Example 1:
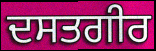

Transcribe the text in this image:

ਦਸਤਗੀਰ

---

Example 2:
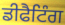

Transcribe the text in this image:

ਡੀਫੈਟਿੰਗ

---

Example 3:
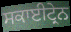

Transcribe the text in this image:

ਸਕਾਈਟ੍ਰੇਨ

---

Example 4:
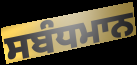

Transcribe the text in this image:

ਸਬੰਧਮਾਨ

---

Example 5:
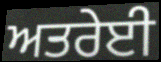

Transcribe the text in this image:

ਅਤਰੇਈ